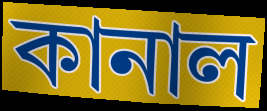
কানাল